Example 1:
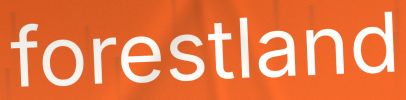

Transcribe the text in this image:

forestland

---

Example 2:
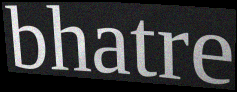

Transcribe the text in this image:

bhatre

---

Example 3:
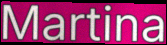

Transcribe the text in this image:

Martina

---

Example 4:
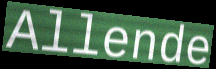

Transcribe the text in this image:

Allende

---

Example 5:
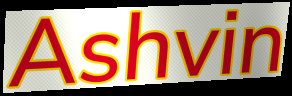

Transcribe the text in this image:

Ashvin